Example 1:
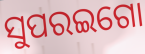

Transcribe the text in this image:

ସୁପରଇଗୋ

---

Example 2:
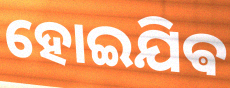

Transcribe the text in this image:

ହୋଇଯିଵ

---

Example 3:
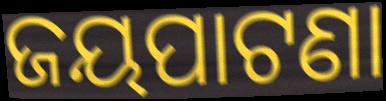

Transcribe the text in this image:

ଜୟପାଟଣା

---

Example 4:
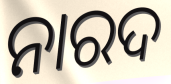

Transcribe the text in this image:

ନାରଦ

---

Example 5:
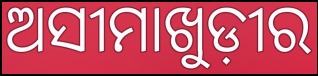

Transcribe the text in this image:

ଅସୀମାଖୁଡ଼ୀର